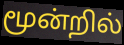
மூன்றில்